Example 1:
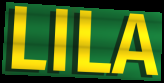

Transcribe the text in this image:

LILA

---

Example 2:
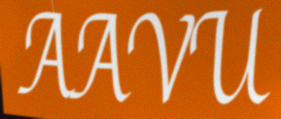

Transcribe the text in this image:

AAVU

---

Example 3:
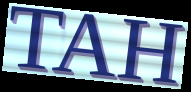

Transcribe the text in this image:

TAH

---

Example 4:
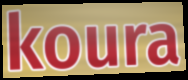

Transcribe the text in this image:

koura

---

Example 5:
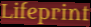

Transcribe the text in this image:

Lifeprint